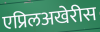
एप्रिलअखेरीस